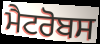
ਮੈਟਰੋਬਸ